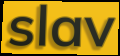
slav